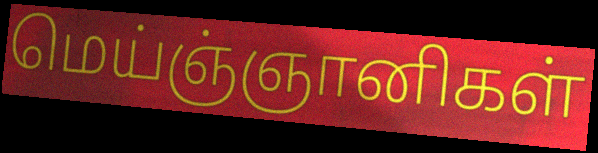
மெய்ஞ்ஞானிகள்